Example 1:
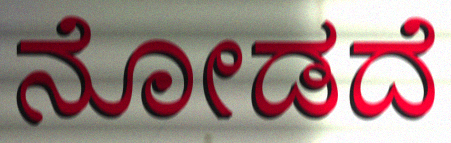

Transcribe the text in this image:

ನೋಡದೆ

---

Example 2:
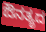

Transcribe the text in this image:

ಔನತ್ಯದ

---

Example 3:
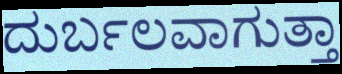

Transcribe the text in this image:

ದುರ್ಬಲವಾಗುತ್ತಾ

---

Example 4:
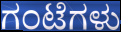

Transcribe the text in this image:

ಗಂಟೆಗಳು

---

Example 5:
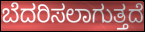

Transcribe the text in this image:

ಬೆದರಿಸಲಾಗುತ್ತದೆ